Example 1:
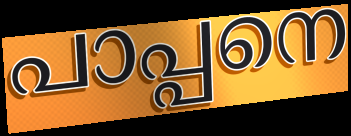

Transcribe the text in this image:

പാപ്പനെ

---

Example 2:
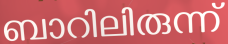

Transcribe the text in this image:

ബാറിലിരുന്ന്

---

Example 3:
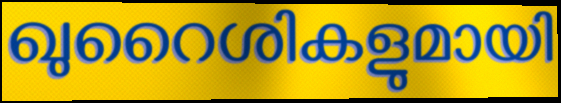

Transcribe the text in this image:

ഖുറൈശികളുമായി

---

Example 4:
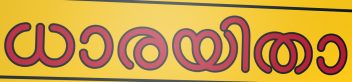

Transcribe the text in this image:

ധാരയിതാ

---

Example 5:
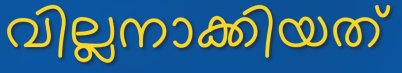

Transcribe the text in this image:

വില്ലനാക്കിയത്